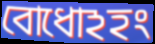
বোধোঽহং